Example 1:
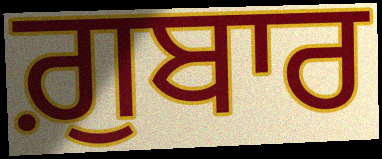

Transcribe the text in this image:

ਗ਼ੁਬਾਰ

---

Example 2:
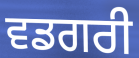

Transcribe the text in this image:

ਵਡਗਰੀ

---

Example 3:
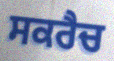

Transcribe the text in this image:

ਸਕਰੈਚ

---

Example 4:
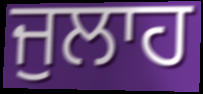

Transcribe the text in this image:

ਜੁਲਾਹ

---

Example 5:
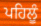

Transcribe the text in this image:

ਪਹਿਲੂੰ